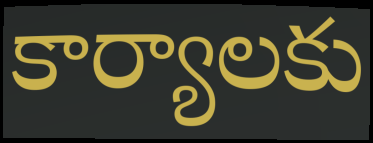
కార్యాలకు